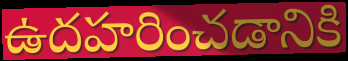
ఉదహరించడానికి